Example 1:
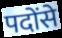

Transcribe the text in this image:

पदोंसे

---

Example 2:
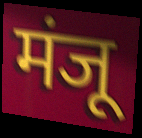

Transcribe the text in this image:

मंजू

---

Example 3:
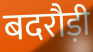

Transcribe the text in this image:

बदरौड़ी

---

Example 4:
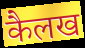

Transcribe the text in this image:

कैलख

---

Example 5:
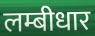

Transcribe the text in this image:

लम्बीधार